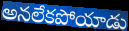
అనలేకపోయాడు